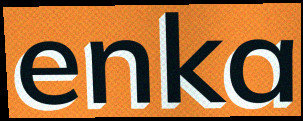
enka